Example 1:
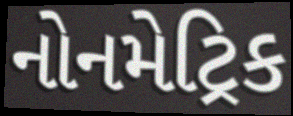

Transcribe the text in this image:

નોનમેટ્રિક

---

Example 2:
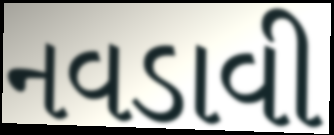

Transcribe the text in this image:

નવડાવી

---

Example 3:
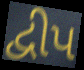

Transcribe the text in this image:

દ્વીપ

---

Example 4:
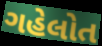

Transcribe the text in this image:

ગહેલોત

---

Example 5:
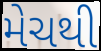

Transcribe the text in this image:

મેચથી